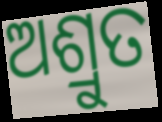
ଅଶ୍ରୁତ